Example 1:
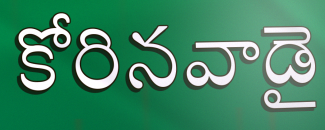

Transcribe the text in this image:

కోరినవాడై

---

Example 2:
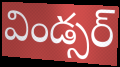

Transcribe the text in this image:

విండ్సర్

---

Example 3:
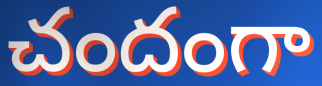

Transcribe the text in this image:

చందంగా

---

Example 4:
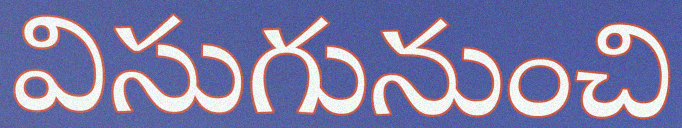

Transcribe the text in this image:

విసుగునుంచి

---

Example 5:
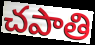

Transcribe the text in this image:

చపాతి